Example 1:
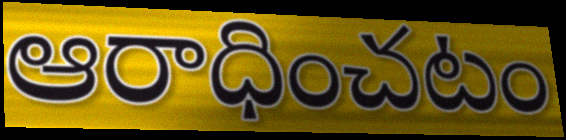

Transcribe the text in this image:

ఆరాధించటం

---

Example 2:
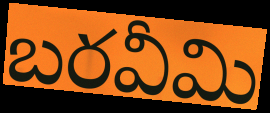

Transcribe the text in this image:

బరవీమి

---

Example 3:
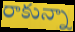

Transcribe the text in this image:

రాకున్నా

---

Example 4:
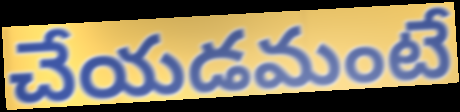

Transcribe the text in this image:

చేయడమంటే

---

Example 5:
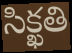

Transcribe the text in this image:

సిక్ఖతి